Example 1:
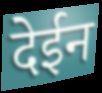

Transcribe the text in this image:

देईन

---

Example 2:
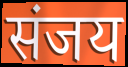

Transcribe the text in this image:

संजय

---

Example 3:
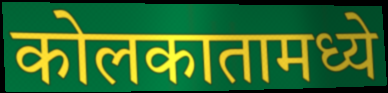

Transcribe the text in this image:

कोलकातामध्ये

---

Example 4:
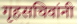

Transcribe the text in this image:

गृहसचिवांनी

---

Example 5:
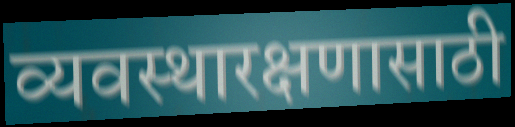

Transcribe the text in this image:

व्यवस्थारक्षणासाठी